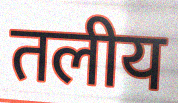
तलीय